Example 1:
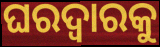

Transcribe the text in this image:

ଘରଦ୍ୱାରକୁ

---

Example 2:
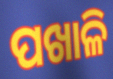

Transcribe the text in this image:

ପଖାଳି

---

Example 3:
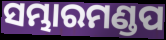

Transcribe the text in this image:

ସମ୍ଭାରମଣ୍ଡପ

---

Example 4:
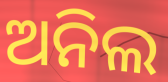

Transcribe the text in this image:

ଅନିଲ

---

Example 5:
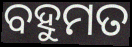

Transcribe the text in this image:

ବହୁମତ